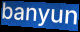
banyun